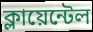
ক্লায়েন্টেল